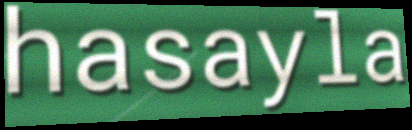
hasayla